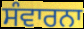
ਸੰਵਾਰਨਾ